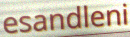
esandleni